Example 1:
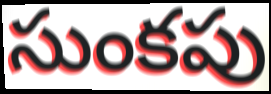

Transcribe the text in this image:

సుంకపు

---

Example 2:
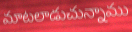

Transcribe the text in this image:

మాటలాడుచున్నాము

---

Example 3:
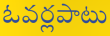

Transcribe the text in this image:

ఓవర్లపాటు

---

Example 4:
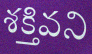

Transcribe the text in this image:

శక్తివని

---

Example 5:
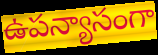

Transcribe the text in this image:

ఉపన్యాసంగా